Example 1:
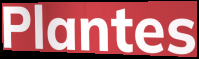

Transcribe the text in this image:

Plantes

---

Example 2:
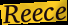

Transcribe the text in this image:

Reece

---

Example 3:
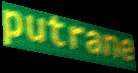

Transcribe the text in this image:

putrane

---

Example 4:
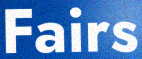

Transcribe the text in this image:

Fairs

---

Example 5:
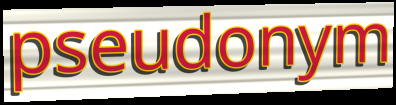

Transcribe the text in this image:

pseudonym